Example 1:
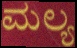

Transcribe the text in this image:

ಮಲ್ಯ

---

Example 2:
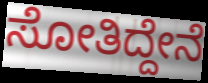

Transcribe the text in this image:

ಸೋತಿದ್ದೇನೆ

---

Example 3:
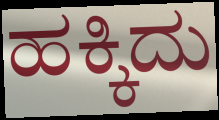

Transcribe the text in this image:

ಹಕ್ಕಿದು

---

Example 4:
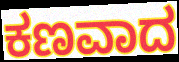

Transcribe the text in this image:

ಕಣವಾದ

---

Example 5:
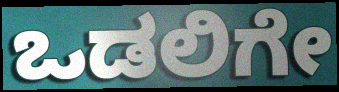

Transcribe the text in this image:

ಒಡಲಿಗೇ